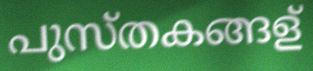
പുസ്തകങ്ങള്